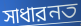
সাধারনত